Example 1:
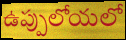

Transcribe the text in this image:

ఉప్పులోయలో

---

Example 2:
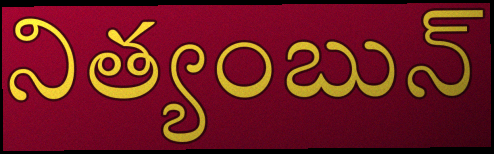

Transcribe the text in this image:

నిత్యంబున్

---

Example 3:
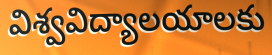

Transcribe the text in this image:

విశ్వవిద్యాలయాలకు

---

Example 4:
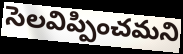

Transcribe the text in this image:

సెలవిప్పించమని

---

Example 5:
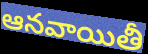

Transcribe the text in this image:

ఆనవాయితీ